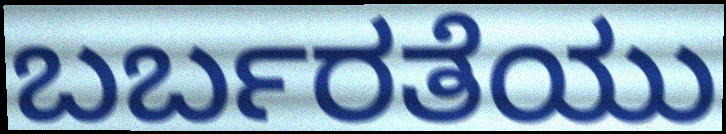
ಬರ್ಬರತೆಯು